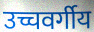
उच्चवर्गीय